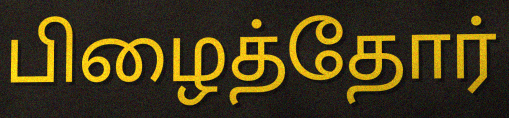
பிழைத்தோர்